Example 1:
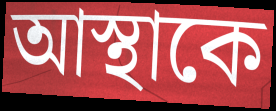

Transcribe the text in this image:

আস্থাকে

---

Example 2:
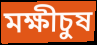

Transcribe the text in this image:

মক্ষীচুষ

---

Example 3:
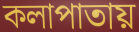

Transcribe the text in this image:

কলাপাতায়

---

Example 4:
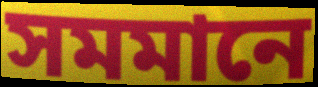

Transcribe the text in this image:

সমমানে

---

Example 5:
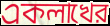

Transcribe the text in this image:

একলাখের